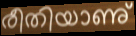
രീതിയാണു്